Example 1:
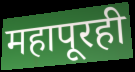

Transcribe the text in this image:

महापूरही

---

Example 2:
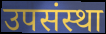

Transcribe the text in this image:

उपसंस्था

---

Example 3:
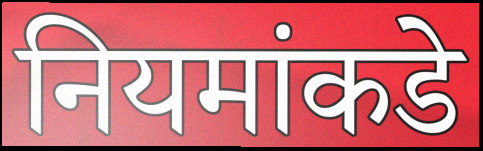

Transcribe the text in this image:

नियमांकडे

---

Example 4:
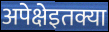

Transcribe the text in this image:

अपेक्षेइतक्या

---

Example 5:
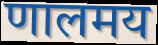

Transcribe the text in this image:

णालमय